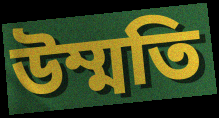
উম্মতি